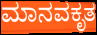
ಮಾನವಕೃತ